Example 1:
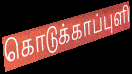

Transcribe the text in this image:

கொடுக்காப்புளி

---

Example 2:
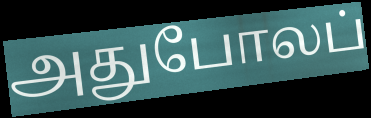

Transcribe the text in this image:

அதுபோலப்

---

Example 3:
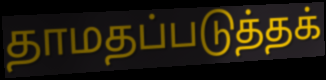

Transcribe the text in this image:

தாமதப்படுத்தக்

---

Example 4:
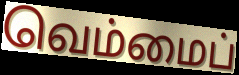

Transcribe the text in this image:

வெம்மைப்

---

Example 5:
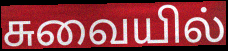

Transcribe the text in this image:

சுவையில்